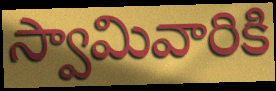
స్వామివారికి